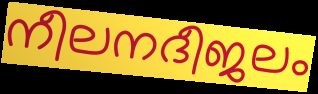
നീലനദീജലം